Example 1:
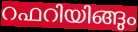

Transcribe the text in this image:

റഫറിയിങ്ങും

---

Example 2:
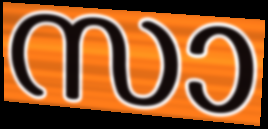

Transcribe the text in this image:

സാ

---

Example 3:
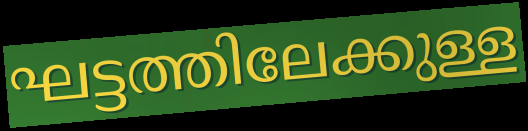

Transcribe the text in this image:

ഘട്ടത്തിലേക്കുള്ള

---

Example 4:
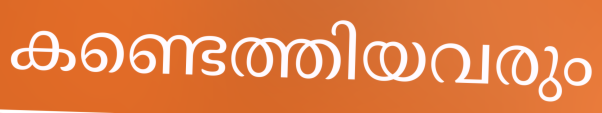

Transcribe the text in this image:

കണ്ടെത്തിയവരും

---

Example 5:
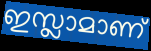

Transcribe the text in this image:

ഇസ്ലാമാണ്